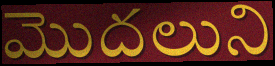
మొదలుని